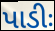
પાડીઃ